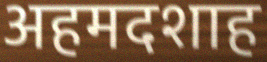
अहमदशाह